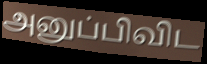
அனுப்பிவிட